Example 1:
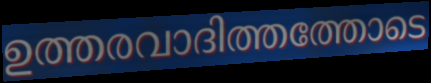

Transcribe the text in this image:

ഉത്തരവാദിത്തത്തോടെ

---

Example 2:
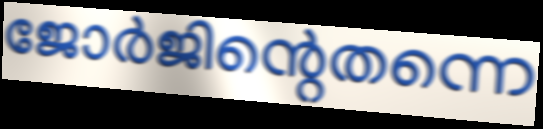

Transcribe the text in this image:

ജോർജിന്റെതന്നെ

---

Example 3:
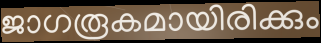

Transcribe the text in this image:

ജാഗരൂകമായിരിക്കും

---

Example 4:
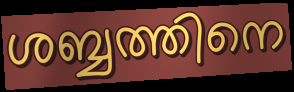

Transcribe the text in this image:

ശബ്ബത്തിനെ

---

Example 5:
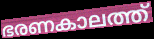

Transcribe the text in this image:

ഭരണകാലത്ത്